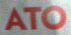
ATO